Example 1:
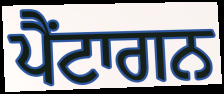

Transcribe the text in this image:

ਪੈਂਟਾਗਨ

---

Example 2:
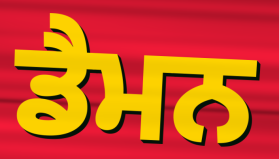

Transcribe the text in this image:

ਡੈਮਨ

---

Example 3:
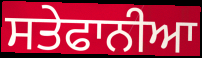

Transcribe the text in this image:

ਸਤੇਫਾਨੀਆ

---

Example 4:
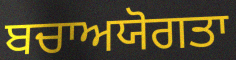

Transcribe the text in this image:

ਬਚਾਅਯੋਗਤਾ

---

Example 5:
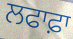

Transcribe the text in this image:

ਲਫਾਫ਼ਾ